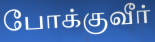
போக்குவீர்